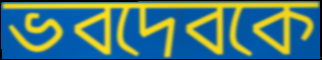
ভবদেবকে